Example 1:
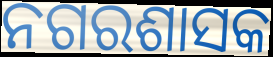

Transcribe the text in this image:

ନଗରଶାସକ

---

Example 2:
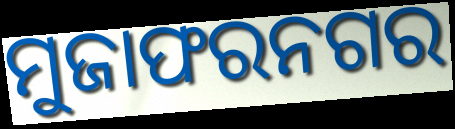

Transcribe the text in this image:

ମୁଜାଫରନଗର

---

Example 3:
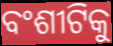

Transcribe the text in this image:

ବଂଶୀଟିକୁ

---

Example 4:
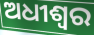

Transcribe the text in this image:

ଅଧୀଶ୍ୱର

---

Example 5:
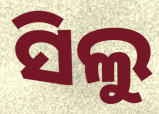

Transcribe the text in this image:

ସିଲୁ